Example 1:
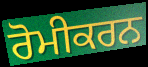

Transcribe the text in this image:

ਰੋਮੀਕਰਨ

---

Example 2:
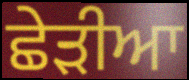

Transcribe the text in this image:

ਛੇੜੀਆ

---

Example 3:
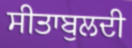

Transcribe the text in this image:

ਸੀਤਾਬੁਲਦੀ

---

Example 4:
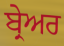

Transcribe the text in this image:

ਬ੍ਰੇਅਰ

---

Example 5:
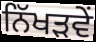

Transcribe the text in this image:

ਨਿੱਖੜਵੇਂ